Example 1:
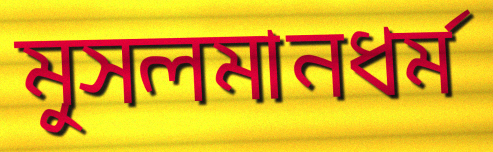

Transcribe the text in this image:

মুসলমানধর্ম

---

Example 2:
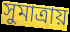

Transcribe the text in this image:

সুমাত্রায়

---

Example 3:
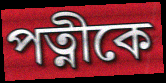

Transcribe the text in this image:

পত্নীকে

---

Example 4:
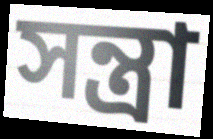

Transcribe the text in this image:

সন্ত্রা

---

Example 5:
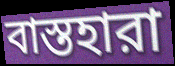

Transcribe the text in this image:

বাস্তহারা